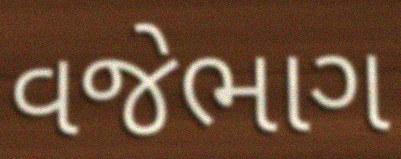
વજેભાગ